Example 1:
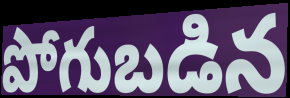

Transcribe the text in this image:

పోగుబడిన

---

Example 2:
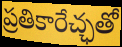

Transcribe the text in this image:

ప్రతికారేచ్ఛతో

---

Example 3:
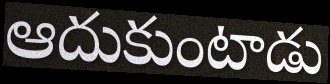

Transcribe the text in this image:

ఆదుకుంటాడు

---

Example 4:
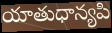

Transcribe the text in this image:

యాతుధాన్యపి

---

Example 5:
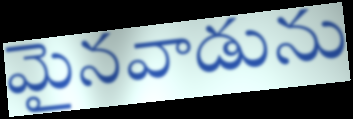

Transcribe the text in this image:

మైనవాడును